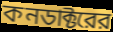
কনডাক্টরের